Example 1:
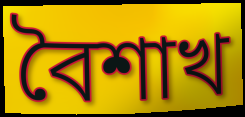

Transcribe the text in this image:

বৈশাখ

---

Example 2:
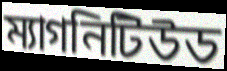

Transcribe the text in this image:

ম্যাগনিটিউড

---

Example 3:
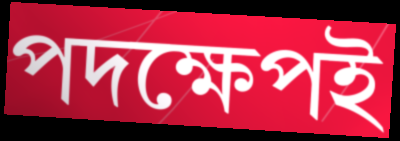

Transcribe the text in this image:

পদক্ষেপই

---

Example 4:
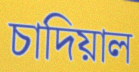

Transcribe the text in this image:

চাদিয়াল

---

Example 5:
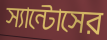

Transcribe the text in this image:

স্যান্টোসের